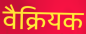
वैक्रियक